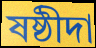
ষষ্ঠীদা